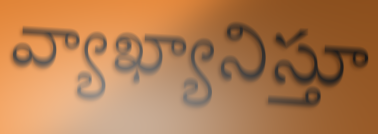
వ్యాఖ్యానిస్తూ